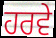
ਹਰਵੇ